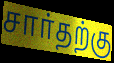
சார்தற்கு